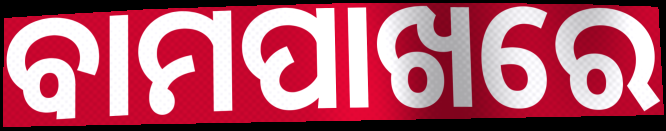
ବାମପାଖରେ